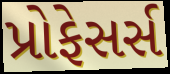
પ્રોફેસર્સ